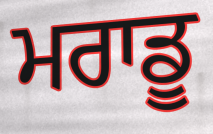
ਮਰਾਡੂ